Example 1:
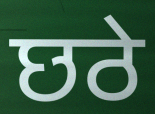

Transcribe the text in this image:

छठे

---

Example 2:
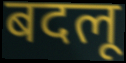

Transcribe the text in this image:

बदलू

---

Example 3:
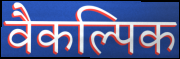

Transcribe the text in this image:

वैकल्पिक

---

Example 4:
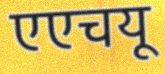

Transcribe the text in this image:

एएचयू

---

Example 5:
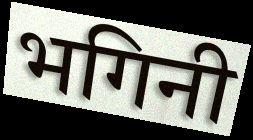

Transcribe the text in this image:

भगिनी